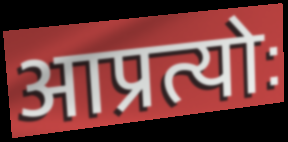
आप्रत्योः